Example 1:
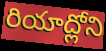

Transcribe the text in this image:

రియాద్లోని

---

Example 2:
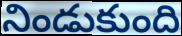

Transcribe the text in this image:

నిండుకుంది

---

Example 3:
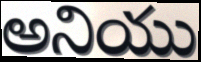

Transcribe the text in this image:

అనియు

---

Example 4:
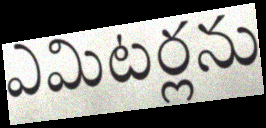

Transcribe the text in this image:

ఎమిటర్లను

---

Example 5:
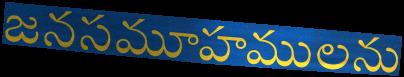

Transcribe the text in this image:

జనసమూహములను